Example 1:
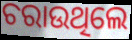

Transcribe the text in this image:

ଚରାଉଥିଲେ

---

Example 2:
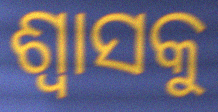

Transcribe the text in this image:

ଶ୍ଵାସକୁ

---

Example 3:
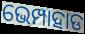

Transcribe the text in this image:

ଭେମ୍ପାହାଡ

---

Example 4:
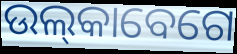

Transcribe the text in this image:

ଉଲ୍‌କାବେଗେ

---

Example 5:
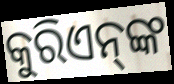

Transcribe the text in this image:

କୁରିଏନ୍‌ଙ୍କ